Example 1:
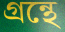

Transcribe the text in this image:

গ্রন্থে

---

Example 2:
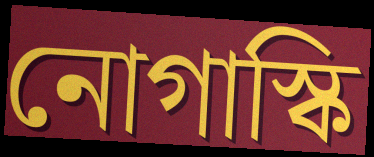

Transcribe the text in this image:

নোগাস্কি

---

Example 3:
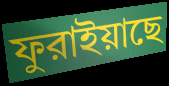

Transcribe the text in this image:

ফুরাইয়াছে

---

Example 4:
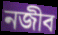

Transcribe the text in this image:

নজীব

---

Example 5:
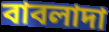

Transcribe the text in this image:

বাবলাদা